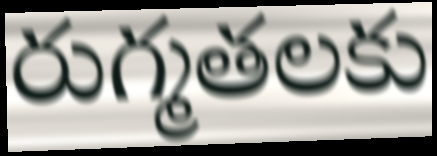
రుగ్మతలకు